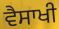
ਵੈਸਾਖੀ